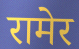
रामेर